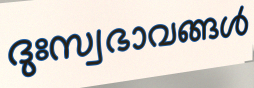
ദുഃസ്വഭാവങ്ങൾ